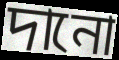
দানো